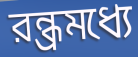
রন্ধ্রমধ্যে